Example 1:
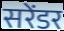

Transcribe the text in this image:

सरेंडर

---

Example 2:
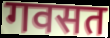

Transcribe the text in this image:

गवसत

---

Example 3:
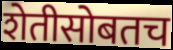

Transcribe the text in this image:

शेतीसोबतच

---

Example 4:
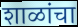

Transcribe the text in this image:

शाळांचा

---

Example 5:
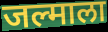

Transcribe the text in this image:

जल्माला